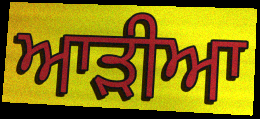
ਆੜੀਆ